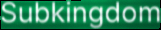
Subkingdom